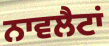
ਨਾਵਲੈਟਾਂ